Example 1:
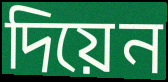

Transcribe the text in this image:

দিয়েন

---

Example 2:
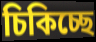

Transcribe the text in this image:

চিকিচ্ছে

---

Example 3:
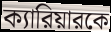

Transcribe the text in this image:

ক্যারিয়ারকে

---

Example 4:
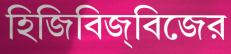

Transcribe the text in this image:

হিজিবিজ্‌বিজের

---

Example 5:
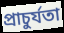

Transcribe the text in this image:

প্রাচুর্যতা